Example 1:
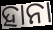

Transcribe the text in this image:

ହାନା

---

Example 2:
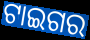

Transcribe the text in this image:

ଟାଇଗର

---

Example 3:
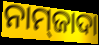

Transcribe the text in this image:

ନାମ୍‌ଜାଦା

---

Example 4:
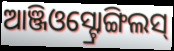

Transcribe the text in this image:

ଆଞ୍ଜିଓସ୍ଟ୍ରୋଙ୍ଗିଲସ୍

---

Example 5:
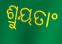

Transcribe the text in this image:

ଶ୍ରୁୟତାଂ